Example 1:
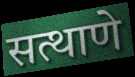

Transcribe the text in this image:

सत्थाणे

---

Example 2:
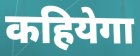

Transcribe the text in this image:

कहियेगा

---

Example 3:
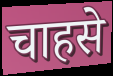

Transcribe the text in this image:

चाहसे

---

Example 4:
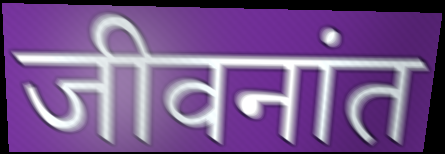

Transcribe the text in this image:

जीवनांत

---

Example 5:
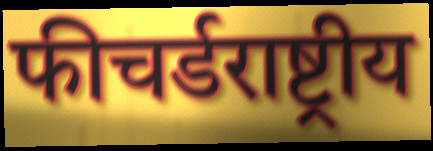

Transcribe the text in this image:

फीचर्डराष्ट्रीय